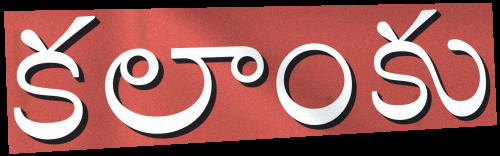
కలాంకు